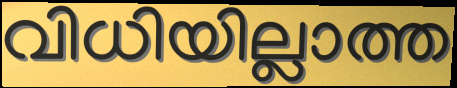
വിധിയില്ലാത്ത